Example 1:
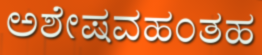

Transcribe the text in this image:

ಅಶೇಷವಹಂತಹ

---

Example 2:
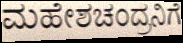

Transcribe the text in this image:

ಮಹೇಶಚಂದ್ರನಿಗೆ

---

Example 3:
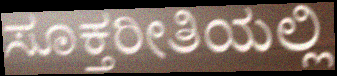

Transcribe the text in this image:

ಸೂಕ್ತರೀತಿಯಲ್ಲಿ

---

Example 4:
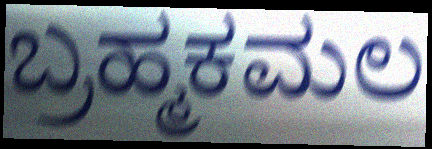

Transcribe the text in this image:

ಬ್ರಹ್ಮಕಮಲ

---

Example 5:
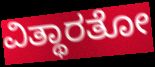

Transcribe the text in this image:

ವಿತ್ಥಾರತೋ